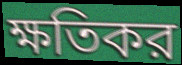
ক্ষতিকর